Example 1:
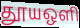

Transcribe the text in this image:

தூயஒளி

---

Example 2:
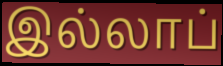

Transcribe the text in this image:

இல்லாப்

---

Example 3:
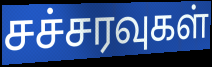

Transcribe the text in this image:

சச்சரவுகள்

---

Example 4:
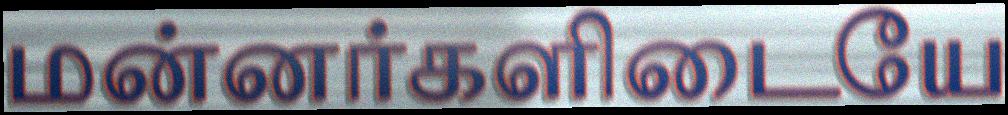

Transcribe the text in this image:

மன்னர்களிடையே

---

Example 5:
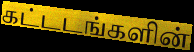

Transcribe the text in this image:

கட்டடங்களின்